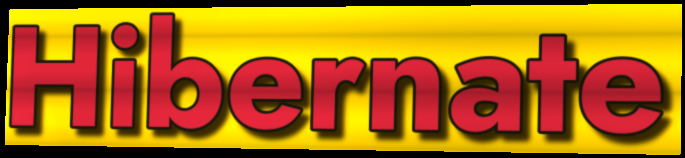
Hibernate